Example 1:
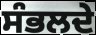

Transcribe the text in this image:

ਸੰਭਲਦੇ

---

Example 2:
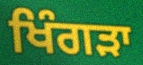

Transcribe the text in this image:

ਖਿੰਗੜਾ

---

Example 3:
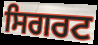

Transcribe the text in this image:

ਸਿਗਰਟ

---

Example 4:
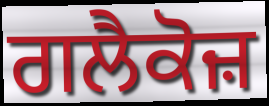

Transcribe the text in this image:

ਗਲੈਕੋਜ਼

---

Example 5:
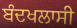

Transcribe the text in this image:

ਬੰਦਖਲਾਸੀ